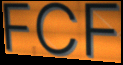
FCF